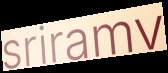
sriramv